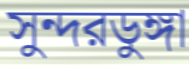
সুন্দরডুঙ্গা